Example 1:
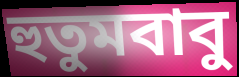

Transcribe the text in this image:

হুতুমবাবু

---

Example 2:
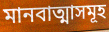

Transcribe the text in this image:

মানবাত্মাসমূহ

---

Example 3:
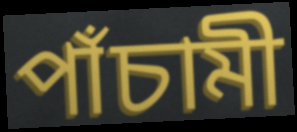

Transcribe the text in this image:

পাঁচামী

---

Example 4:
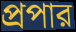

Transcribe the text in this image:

প্রপার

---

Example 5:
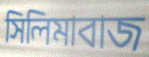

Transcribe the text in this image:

সিলিমাবাজ